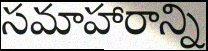
సమాహారాన్ని